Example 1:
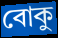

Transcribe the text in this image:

বোকু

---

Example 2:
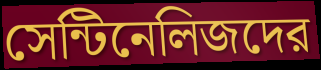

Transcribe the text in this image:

সেন্টিনেলিজদের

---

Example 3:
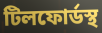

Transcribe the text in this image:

টিলফোর্ডস্থ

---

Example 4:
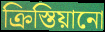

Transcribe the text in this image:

ক্রিস্তিয়ানো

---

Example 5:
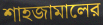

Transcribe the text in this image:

শাহজামালের